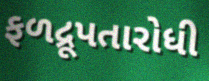
ફળદ્રૂપતારોધી